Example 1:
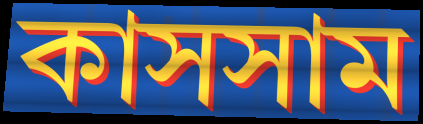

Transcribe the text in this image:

কাসসাম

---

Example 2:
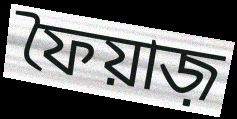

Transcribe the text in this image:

ফৈয়াজ়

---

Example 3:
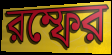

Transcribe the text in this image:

রম্ফের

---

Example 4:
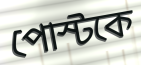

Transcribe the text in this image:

পোস্টকে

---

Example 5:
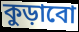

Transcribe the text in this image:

কুড়াবো